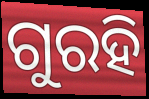
ଗୁରହି